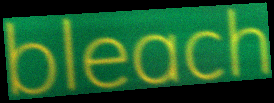
bleach